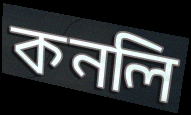
কনলি